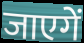
जाएगें